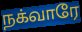
நக்வாரே